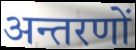
अन्तरणों